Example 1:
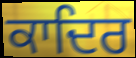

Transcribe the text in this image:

ਕਾਦਿਰ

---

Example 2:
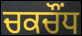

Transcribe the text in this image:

ਚਕਚੌਂਧ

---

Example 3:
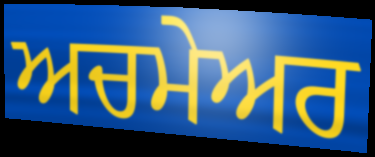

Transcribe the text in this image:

ਅਚਮੇਅਰ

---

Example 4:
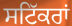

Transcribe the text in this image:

ਸਟਿੱਕਰਾਂ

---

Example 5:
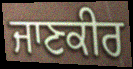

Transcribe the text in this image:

ਜਾਣਕੀਰ